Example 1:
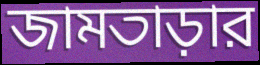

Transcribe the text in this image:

জামতাড়ার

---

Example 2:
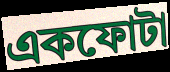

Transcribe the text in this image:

একফোটা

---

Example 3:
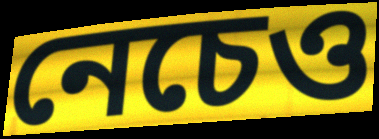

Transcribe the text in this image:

নেচেও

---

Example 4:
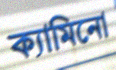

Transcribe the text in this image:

ক্যামিনো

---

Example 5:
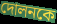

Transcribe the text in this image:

দোলনকে